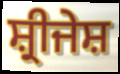
ਸ਼੍ਰੀਜੇਸ਼